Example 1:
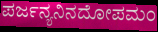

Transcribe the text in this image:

ಪರ್ಜನ್ಯನಿನದೋಪಮಂ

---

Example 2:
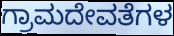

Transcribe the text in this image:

ಗ್ರಾಮದೇವತೆಗಳ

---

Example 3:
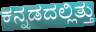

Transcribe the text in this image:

ಕನ್ನಡದಲ್ಲಿತ್ತು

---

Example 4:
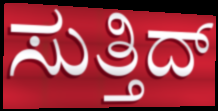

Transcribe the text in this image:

ಸುತ್ತಿದ್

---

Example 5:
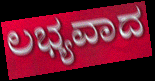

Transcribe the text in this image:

ಲಭ್ಯವಾದ